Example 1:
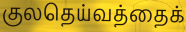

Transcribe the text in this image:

குலதெய்வத்தைக்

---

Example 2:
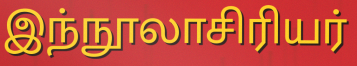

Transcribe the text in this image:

இந்நூலாசிரியர்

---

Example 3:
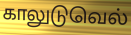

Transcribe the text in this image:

காலுடுவெல்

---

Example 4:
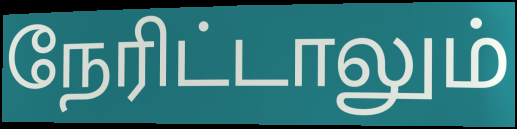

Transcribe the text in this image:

நேரிட்டாலும்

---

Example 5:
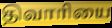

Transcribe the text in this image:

திவாரியை